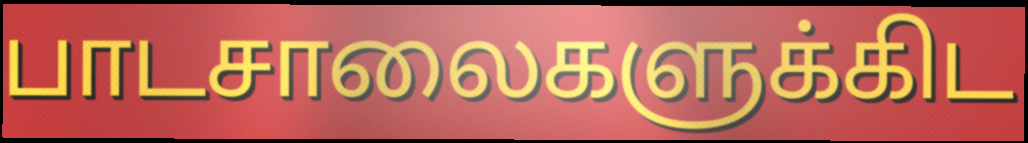
பாடசாலைகளுக்கிட